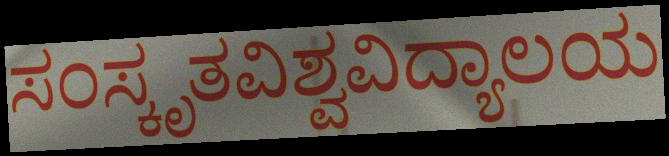
ಸಂಸ್ಕೃತವಿಶ್ವವಿದ್ಯಾಲಯ